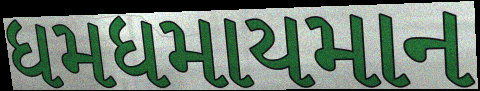
ધમધમાયમાન